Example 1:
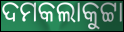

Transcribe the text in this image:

ଦମକଲାକୁଟ୍ଟା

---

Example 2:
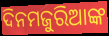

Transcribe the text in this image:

ଦିନମଜୁରିଆଙ୍କ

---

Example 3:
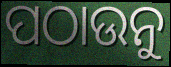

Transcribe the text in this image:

ପଠାଉନୁ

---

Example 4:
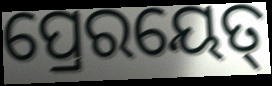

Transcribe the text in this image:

ପ୍ରେରୟେତ୍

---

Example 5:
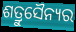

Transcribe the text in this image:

ଶତ୍ରୁସୈନ୍ୟର